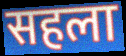
सहला